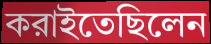
করাইতেছিলেন